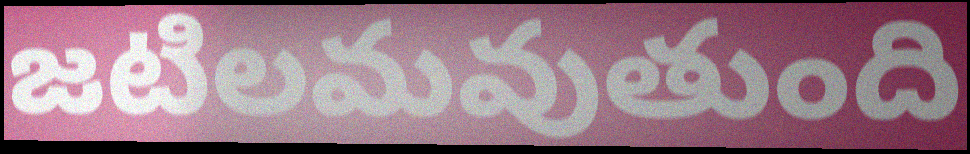
జటిలమవుతుంది